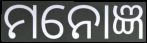
ମନୋଜ୍ଞ